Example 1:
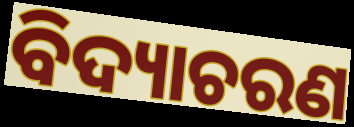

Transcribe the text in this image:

ବିଦ୍ୟାଚରଣ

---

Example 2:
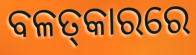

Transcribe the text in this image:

ବଳତ୍‌କାରରେ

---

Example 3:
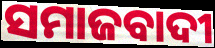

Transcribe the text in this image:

ସମାଜବାଦୀ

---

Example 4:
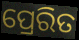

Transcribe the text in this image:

ପ୍ରେରିତ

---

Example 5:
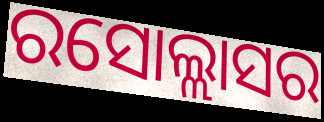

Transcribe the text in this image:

ରସୋଲ୍ଲାସର